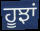
ਹੂਝਾਂ